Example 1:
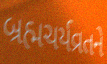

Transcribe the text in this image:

બ્રહ્મચર્યવ્રતને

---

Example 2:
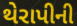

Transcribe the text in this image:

થેરાપીની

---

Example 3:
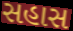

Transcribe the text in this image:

સહાસ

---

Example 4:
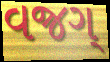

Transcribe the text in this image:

વજ્રગ્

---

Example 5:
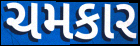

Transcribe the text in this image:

ચમકાર